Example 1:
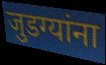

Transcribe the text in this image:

जुडग्यांना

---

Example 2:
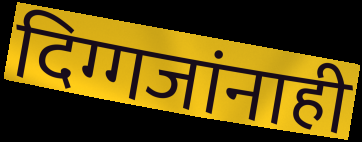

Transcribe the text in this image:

दिग्गजांनाही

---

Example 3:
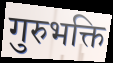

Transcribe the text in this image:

गुरुभक्ति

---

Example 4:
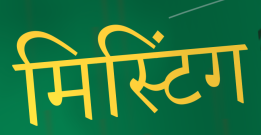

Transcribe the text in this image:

मिस्टिंग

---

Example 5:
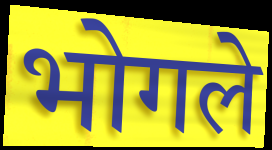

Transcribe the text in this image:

भोगले